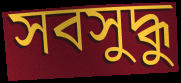
সবসুদ্ধু